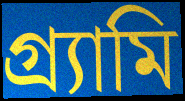
গ্র্যামি